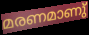
മരണമാണു്